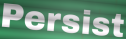
Persist